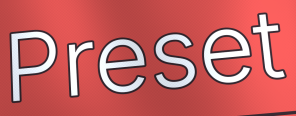
Preset